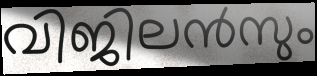
വിജിലൻസും